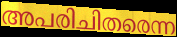
അപരിചിതരെന്ന